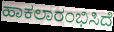
ಹಾಕಲಾರಂಭಿಸಿದೆ